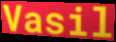
Vasil